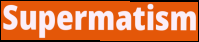
Supermatism